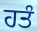
ਹਤੰ